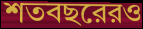
শতবছরেরও